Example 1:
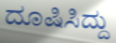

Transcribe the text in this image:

ದೂಷಿಸಿದ್ದು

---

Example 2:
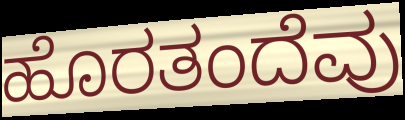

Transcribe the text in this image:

ಹೊರತಂದೆವು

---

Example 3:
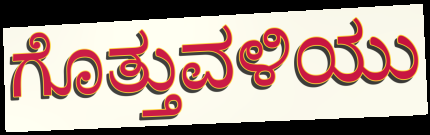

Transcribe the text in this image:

ಗೊತ್ತುವಳಿಯು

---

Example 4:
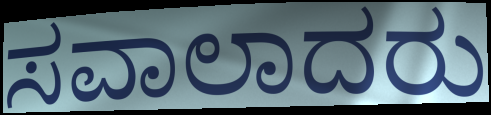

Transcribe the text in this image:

ಸವಾಲಾದರು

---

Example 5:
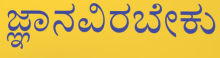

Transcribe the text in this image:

ಜ್ಞಾನವಿರಬೇಕು